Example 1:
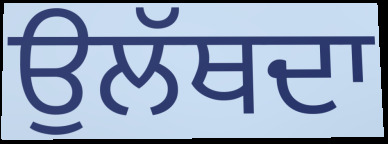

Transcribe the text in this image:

ਉਲੱਥਦਾ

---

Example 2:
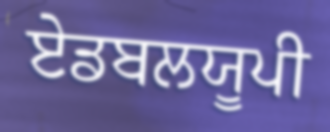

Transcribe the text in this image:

ਏਡਬਲਯੂਪੀ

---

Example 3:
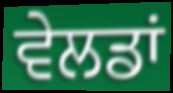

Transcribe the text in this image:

ਵੇਲਡਾਂ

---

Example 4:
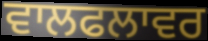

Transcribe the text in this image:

ਵਾਲਫਲਾਵਰ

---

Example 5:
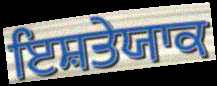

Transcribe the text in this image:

ਇਸ਼ਤੇਯਾਕ